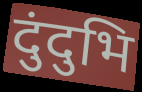
दुंदुभि